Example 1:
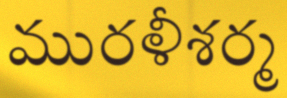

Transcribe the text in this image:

మురళీశర్మ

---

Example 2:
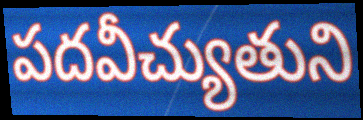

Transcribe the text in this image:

పదవీచ్యుతుని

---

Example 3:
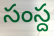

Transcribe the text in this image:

సంస్ద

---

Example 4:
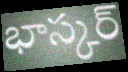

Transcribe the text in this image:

భాస్కర్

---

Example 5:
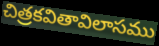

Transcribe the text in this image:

చిత్రకవితావిలాసము